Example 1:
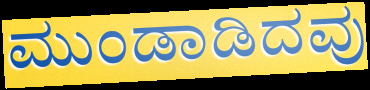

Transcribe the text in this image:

ಮುಂಡಾಡಿದವು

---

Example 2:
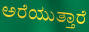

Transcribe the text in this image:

ಅರೆಯುತ್ತಾರೆ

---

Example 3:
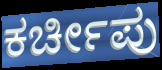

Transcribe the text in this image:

ಕರ್ಚೀಪು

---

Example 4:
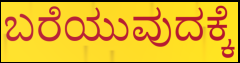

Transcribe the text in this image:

ಬರೆಯುವುದಕ್ಕೆ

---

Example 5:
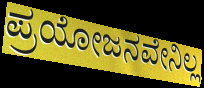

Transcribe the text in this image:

ಪ್ರಯೋಜನವೇನಿಲ್ಲ